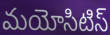
మయోసిటిస్